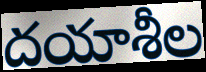
దయాశీల